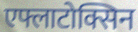
एफ्लाटोक्सिन